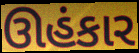
ઊહંકાર